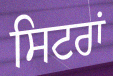
ਸਿਟਰਾਂ